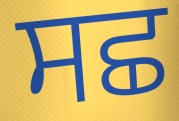
ਸਛ